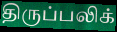
திருப்பலிக்